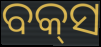
ବକ୍‌ସ